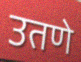
उतणे